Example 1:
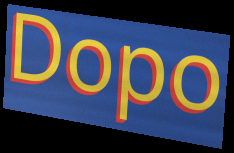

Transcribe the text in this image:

Dopo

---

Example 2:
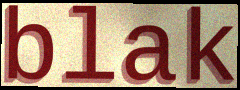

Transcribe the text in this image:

blak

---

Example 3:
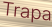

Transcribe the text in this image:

Trapa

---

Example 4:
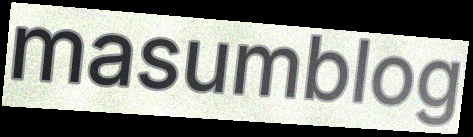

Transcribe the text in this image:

masumblog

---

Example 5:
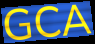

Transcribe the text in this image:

GCA